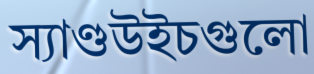
স্যাণ্ডউইচগুলো